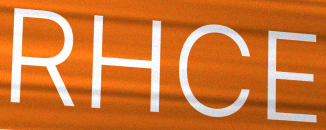
RHCE